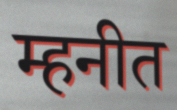
म्हनीत